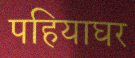
पहियाघर